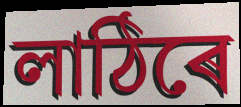
লাঠিৰে